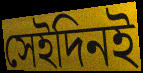
সেইদিনই